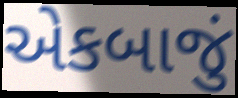
એકબાજું